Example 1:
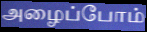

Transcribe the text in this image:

அழைப்போம்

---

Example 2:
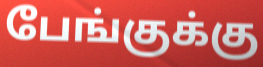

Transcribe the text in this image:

பேங்குக்கு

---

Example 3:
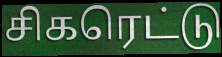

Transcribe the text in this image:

சிகரெட்டு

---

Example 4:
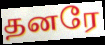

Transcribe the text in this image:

தனரே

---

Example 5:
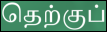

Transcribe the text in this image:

தெற்குப்